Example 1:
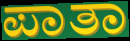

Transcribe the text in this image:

ಪಾತಾ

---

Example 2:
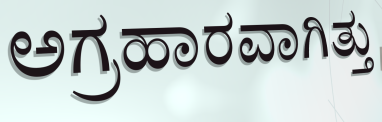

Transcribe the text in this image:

ಅಗ್ರಹಾರವಾಗಿತ್ತು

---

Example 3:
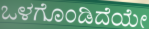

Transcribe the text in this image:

ಒಳಗೊಂಡಿದೆಯೇ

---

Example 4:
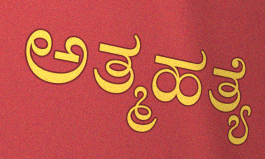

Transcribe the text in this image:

ಅತ್ಮಹತ್ಯೆ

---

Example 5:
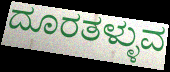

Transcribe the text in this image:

ದೂರತಳ್ಳುವ